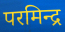
परमिन्द्र